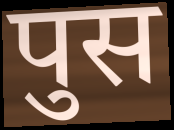
पुस